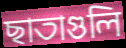
ছাতাগুলি